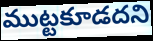
ముట్టకూడదని